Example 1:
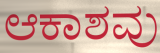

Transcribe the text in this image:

ಆಕಾಶವು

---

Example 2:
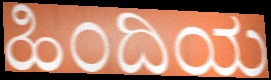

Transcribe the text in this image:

ಹಿಂದಿಯ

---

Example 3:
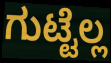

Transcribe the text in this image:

ಗುಟ್ಟೆಲ್ಲ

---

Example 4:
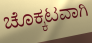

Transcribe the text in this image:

ಚೊಕ್ಕಟವಾಗಿ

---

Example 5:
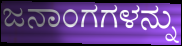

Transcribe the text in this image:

ಜನಾಂಗಗಳನ್ನು